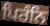
ਪਿਰੰਨਿ